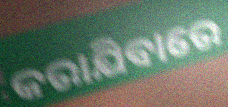
କରାଯିବାରେ